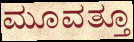
ಮೂವತ್ತೂ